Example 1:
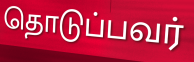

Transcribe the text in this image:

தொடுப்பவர்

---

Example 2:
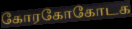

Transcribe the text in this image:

கோரகோகோடக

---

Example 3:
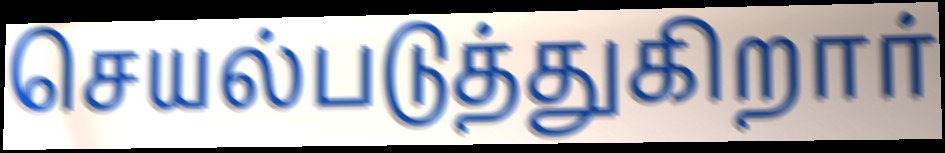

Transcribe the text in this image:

செயல்படுத்துகிறார்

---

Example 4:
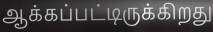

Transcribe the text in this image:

ஆக்கப்பட்டிருக்கிறது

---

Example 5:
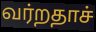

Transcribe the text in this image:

வர்றதாச்